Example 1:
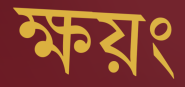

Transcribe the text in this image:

ক্ষয়ং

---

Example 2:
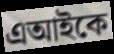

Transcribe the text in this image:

এআইকে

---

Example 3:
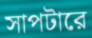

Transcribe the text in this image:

সাপটারে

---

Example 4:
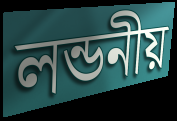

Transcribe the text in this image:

লন্ডনীয়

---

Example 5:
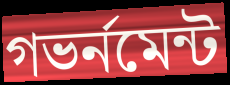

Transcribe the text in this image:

গভর্নমেন্ট